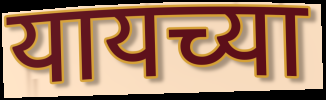
यायच्या